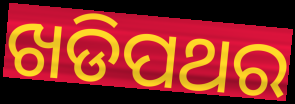
ଖଡିପଥର